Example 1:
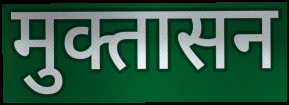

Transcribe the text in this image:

मुक्तासन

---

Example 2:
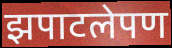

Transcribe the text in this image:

झपाटलेपण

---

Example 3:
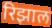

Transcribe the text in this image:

रिझाल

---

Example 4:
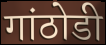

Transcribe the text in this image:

गांठोडी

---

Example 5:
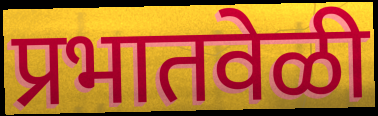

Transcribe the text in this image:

प्रभातवेळी